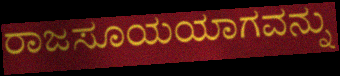
ರಾಜಸೂಯಯಾಗವನ್ನು